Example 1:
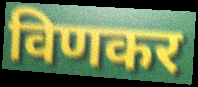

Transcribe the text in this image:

विणकर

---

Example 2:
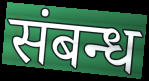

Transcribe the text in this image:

संबन्ध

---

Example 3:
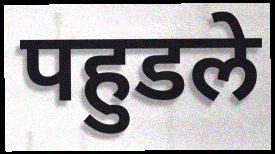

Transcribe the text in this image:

पहुडले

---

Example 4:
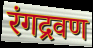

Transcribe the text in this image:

रंगद्रवण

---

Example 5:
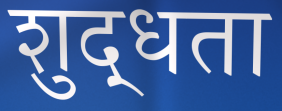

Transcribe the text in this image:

शुद्धता